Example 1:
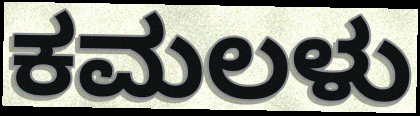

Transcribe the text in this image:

ಕಮಲಳು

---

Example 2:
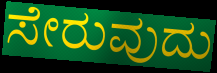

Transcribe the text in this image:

ಸೇರುವುದು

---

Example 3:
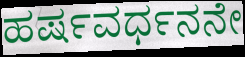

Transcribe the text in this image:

ಹರ್ಷವರ್ಧನನೇ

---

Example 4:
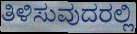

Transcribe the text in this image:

ತಿಳಿಸುವುದರಲ್ಲಿ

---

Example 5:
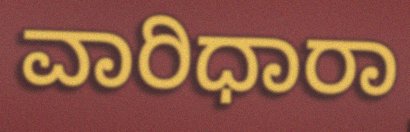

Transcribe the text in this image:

ವಾರಿಧಾರಾ